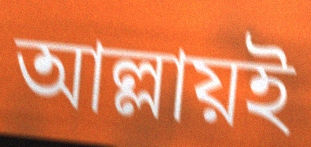
আল্লায়ই